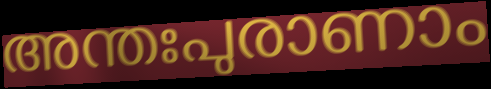
അന്തഃപുരാണാം